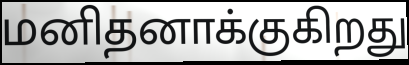
மனிதனாக்குகிறது